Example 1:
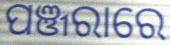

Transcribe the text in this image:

ପଞ୍ଜରାରେ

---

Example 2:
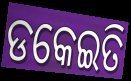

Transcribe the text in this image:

ଡକେଇତି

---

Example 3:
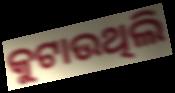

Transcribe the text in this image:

କୁଟାଉଥିଲି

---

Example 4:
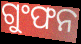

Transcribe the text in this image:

ଗୁଂଫନ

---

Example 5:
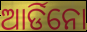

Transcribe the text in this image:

ଆର୍ଡିନୋ